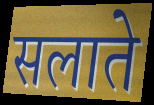
सलाते